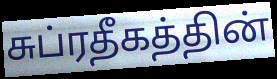
சுப்ரதீகத்தின்